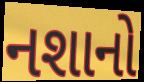
નશાનો